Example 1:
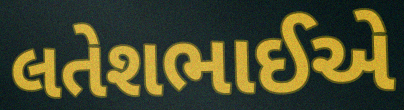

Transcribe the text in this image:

લતેશભાઈએ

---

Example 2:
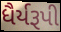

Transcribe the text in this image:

ધૈર્યરૂપી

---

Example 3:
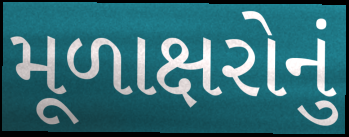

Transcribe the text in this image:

મૂળાક્ષરોનું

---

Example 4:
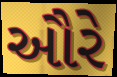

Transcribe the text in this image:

ઔરે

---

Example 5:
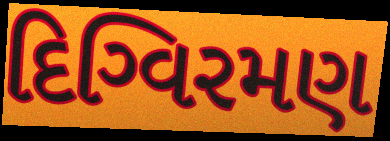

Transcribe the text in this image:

દિગ્વિરમણ